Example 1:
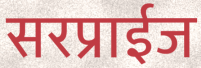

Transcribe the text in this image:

सरप्राईज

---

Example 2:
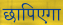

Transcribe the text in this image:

छापिएगा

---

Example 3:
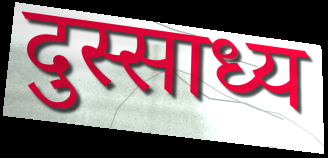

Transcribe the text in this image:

दुस्साध्य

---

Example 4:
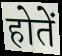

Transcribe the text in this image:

होतें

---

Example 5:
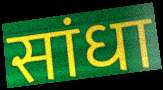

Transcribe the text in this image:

सांधा